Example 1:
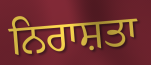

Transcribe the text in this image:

ਨਿਰਾਸ਼ਤਾ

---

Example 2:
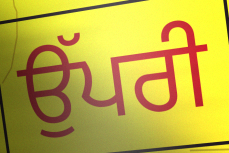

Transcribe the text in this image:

ਉੱਪਰੀ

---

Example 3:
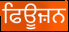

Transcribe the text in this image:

ਫਿਊਜ਼ਨ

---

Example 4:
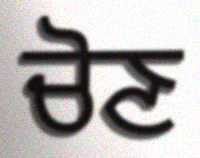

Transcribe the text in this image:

ਚੋਣ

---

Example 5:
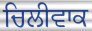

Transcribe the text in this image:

ਚਿਲੀਵਾਕ